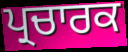
ਪ੍ਰਚਾਰਕ